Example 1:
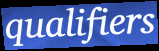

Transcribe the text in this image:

qualifiers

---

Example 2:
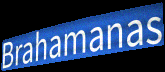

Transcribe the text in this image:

Brahamanas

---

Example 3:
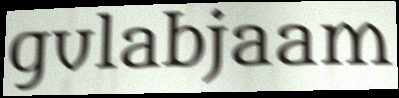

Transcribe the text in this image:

gulabjaam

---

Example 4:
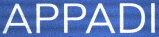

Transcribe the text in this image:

APPADI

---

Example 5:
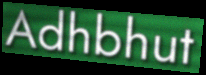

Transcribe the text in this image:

Adhbhut